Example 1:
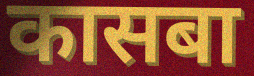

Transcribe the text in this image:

कासबा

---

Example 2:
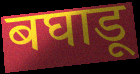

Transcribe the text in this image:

बघाडू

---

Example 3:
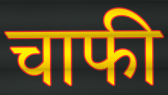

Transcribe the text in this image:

चाफी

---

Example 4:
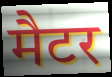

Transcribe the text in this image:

मैटर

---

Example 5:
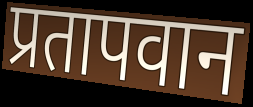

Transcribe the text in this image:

प्रतापवान